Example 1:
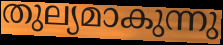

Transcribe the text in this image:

തുല്യമാകുന്നു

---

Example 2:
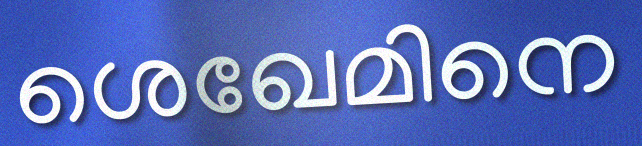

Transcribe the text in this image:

ശെഖേമിനെ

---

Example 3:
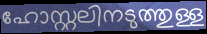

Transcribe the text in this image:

ഹോസ്റ്റലിനടുത്തുള്ള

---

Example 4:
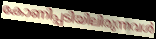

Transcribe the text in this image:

കോണിപ്പടിയിലിരുന്നവൾ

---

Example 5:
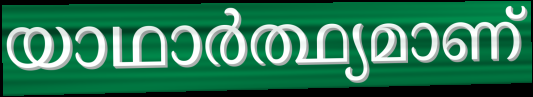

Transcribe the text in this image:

യാഥാർത്ഥ്യമാണ്